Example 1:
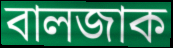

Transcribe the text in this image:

বালজাক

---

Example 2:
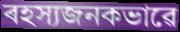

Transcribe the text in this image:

ৰহস্যজনকভাৱে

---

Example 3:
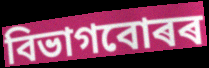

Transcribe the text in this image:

বিভাগবোৰৰ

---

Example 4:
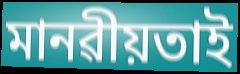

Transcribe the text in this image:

মানৱীয়তাই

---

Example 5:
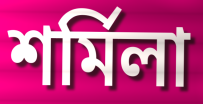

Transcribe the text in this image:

শৰ্মিলা